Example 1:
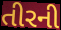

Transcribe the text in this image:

તીરની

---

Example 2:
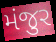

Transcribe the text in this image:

મંજુર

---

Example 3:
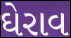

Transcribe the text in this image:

ઘેરાવ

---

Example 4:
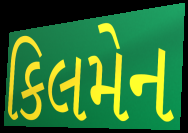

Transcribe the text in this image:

કિલમેન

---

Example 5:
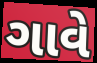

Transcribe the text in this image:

ગાવે